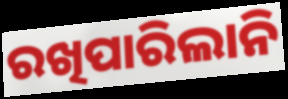
ରଖିପାରିଲାନି